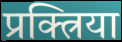
प्रक्त्रिया